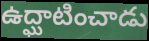
ఉద్ఘాటించాడు